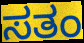
ಸತಂ